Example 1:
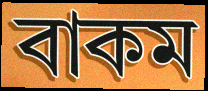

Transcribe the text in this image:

বাকম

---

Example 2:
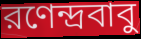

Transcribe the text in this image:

রণেন্দ্রবাবু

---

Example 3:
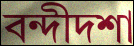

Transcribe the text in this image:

বন্দীদশা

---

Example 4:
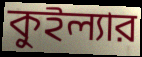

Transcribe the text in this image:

কুইল্যার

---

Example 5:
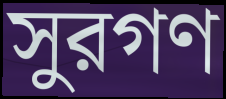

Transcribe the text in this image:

সুরগণ